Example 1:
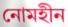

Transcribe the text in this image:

নোমহীন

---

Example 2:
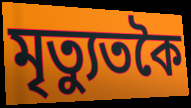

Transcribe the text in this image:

মৃত্যুতকৈ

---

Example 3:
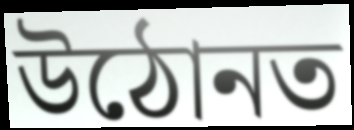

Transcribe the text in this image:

উঠোনত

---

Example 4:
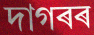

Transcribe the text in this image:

দাগৰৰ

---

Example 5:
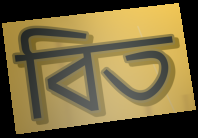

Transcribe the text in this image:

বিত